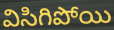
విసిగిపోయి